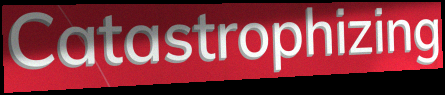
Catastrophizing